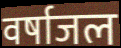
वर्षाजल